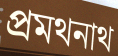
প্রমথনাথ